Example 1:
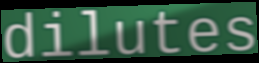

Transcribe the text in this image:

dilutes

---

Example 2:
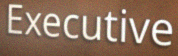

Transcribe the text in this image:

Executive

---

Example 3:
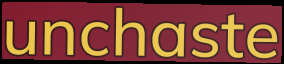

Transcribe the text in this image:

unchaste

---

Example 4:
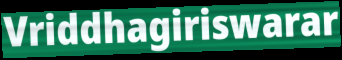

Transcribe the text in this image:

Vriddhagiriswarar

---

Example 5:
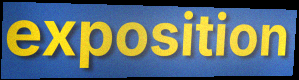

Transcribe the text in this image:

exposition